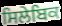
ਸਿਲੇਬਿਕ